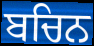
ਬਚਿਨ